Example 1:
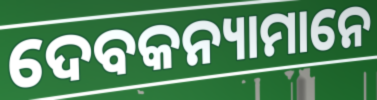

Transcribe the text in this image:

ଦେବକନ୍ୟାମାନେ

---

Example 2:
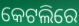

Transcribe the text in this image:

କେଟଲିରେ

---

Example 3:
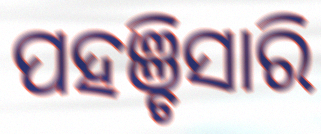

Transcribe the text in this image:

ପହଞ୍ଚିସାରି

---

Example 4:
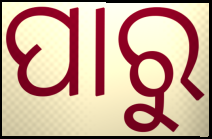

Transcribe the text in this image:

ପାରୁ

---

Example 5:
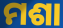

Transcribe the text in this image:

ମଶା